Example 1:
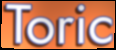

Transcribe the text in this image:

Toric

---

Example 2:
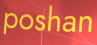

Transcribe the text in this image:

poshan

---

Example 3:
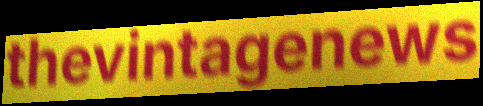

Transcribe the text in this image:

thevintagenews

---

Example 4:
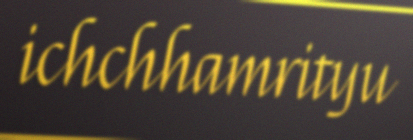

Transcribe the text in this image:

ichchhamrityu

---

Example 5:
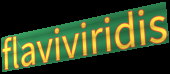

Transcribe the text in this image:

flaviviridis